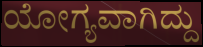
ಯೋಗ್ಯವಾಗಿದ್ದು